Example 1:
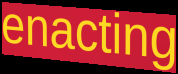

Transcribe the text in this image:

enacting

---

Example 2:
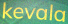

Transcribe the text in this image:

kevala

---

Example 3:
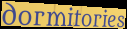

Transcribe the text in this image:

dormitories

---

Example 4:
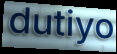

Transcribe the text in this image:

dutiyo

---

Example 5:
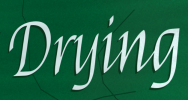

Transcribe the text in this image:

Drying